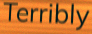
Terribly